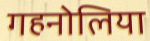
गहनोलिया